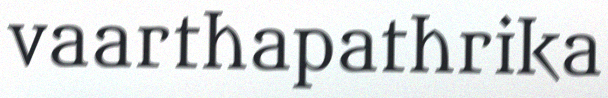
vaarthapathrika